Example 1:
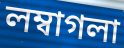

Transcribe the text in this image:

লম্বাগলা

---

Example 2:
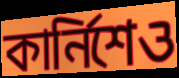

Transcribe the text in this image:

কার্নিশেও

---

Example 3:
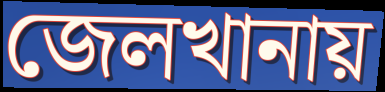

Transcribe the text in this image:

জেলখানায়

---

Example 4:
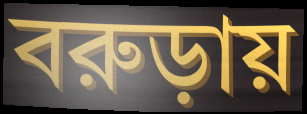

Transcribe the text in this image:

বরুড়ায়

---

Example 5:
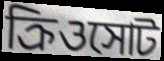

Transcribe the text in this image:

ক্রিওসোট